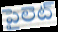
పైలెట్